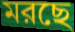
মরছে